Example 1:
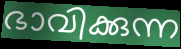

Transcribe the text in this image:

ഭാവിക്കുന്ന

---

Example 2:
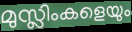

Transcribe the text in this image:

മുസ്ലിംകളെയും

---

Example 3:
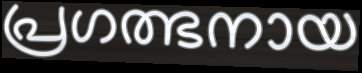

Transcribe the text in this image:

പ്രഗത്ഭനായ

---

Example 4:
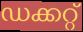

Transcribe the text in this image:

ഡക്കറ്റ്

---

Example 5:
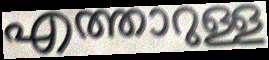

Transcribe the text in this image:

എത്താറുള്ള